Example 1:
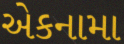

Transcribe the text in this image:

એકનામા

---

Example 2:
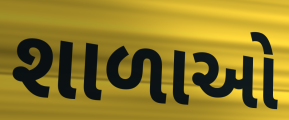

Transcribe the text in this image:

શાળાઓ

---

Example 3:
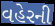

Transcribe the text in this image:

વહેરની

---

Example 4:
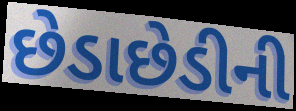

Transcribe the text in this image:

છેડાછેડીની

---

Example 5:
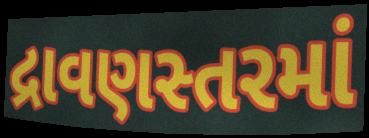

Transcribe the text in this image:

દ્રાવણસ્તરમાં